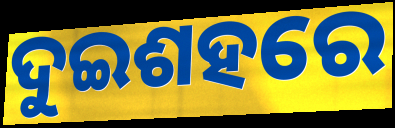
ଦୁଇଶହରେ